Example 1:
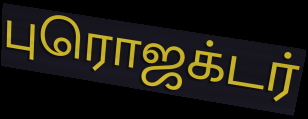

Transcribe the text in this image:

புரொஜக்டர்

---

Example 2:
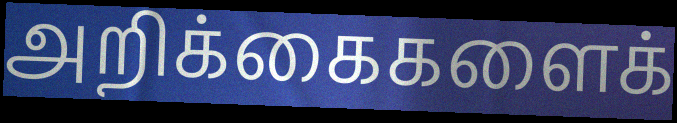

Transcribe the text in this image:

அறிக்கைகளைக்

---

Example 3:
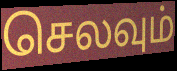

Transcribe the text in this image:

செலவும்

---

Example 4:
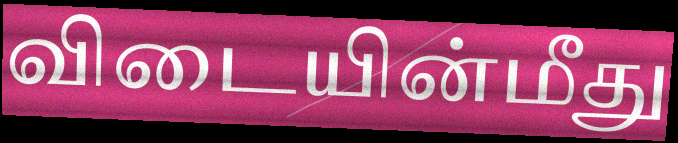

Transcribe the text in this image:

விடையின்மீது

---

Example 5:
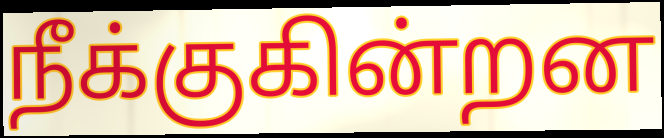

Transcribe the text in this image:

நீக்குகின்றன